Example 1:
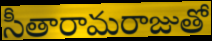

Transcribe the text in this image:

సీతారామరాజుతో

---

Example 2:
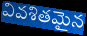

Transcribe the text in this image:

వివశితమైన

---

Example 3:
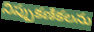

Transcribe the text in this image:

నిప్పుకణికలను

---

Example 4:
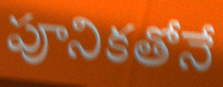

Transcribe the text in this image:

పూనికతోనే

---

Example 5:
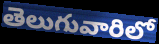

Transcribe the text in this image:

తెలుగువారిలో